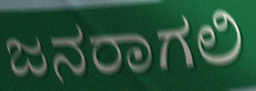
ಜನರಾಗಲಿ